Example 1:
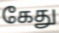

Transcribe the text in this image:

கேது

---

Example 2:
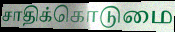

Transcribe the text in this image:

சாதிக்கொடுமை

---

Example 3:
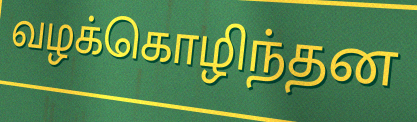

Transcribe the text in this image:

வழக்கொழிந்தன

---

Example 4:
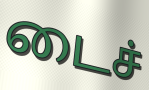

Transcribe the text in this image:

டைச்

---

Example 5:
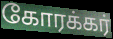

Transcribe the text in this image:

கோரக்கர்